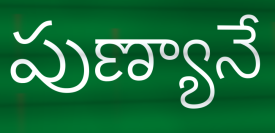
పుణ్యానే